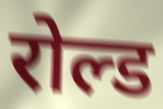
रोल्ड